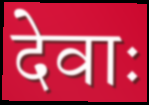
देवाः